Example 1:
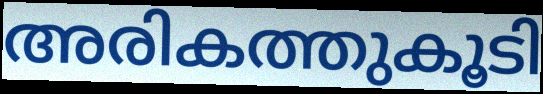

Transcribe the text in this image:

അരികത്തുകൂടി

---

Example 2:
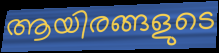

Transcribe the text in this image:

ആയിരങ്ങളുടെ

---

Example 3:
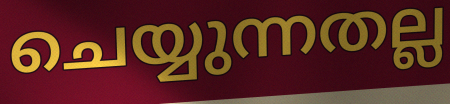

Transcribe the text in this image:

ചെയ്യുന്നതല്ല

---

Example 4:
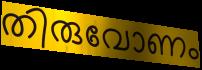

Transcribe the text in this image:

തിരുവോണം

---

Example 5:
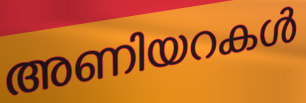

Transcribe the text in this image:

അണിയറകൾ